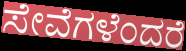
ಸೇವೆಗಳೆಂದರೆ